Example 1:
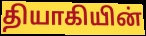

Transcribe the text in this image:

தியாகியின்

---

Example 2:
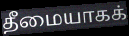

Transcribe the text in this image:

தீமையாகக்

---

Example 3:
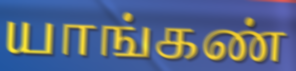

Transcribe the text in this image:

யாங்கண்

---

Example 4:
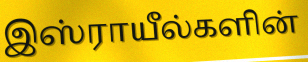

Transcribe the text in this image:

இஸ்ராயீல்களின்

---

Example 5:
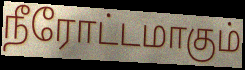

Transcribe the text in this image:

நீரோட்டமாகும்